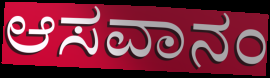
ಆಸವಾನಂ